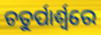
ଚତୁର୍ପାର୍ଶ୍ୱରେ